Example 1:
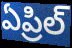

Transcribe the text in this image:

ఏప్రిల్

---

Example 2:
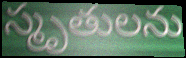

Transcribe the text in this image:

స్మృతులను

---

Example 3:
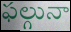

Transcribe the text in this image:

ఫల్గునా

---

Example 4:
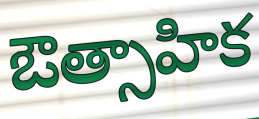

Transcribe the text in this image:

ఔత్సాహిక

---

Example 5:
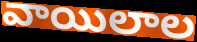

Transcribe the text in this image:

వాయిలాల